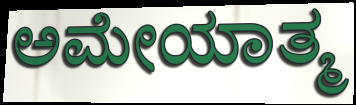
ಅಮೇಯಾತ್ಮ